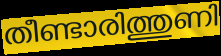
തീണ്ടാരിത്തുണി